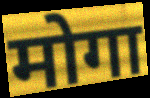
मोगा